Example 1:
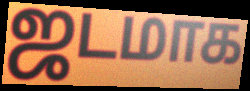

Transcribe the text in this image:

ஜடமாக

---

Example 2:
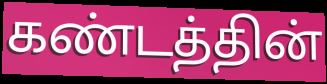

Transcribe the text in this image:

கண்டத்தின்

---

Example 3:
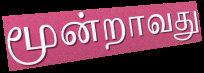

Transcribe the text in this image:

மூன்றாவது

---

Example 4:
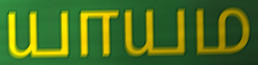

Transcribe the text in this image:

யாயம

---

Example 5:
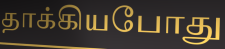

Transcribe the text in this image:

தாக்கியபோது